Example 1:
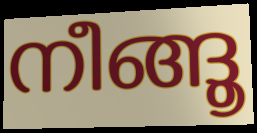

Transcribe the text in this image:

നീങ്ങൂ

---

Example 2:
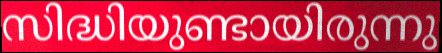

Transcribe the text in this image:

സിദ്ധിയുണ്ടായിരുന്നു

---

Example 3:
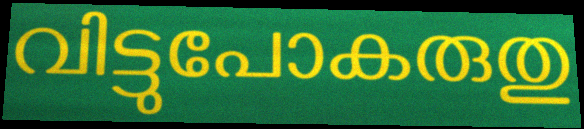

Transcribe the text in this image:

വിട്ടുപോകരുതു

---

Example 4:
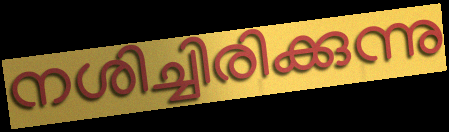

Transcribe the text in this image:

നശിച്ചിരിക്കുന്നു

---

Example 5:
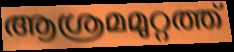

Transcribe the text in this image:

ആശ്രമമുറ്റത്ത്